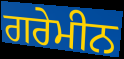
ਗਰੇਮੀਨ